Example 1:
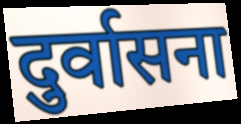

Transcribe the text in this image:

दुर्वासना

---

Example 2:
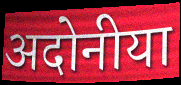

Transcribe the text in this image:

अदोनीया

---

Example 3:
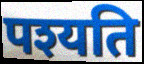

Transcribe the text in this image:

पश्यति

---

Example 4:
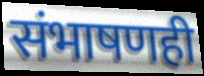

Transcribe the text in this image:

संभाषणही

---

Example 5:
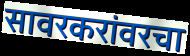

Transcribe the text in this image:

सावरकरांवरचा